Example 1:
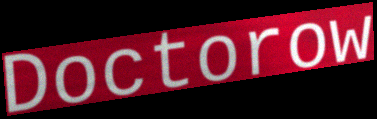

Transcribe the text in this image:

Doctorow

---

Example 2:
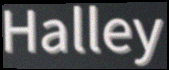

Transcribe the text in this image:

Halley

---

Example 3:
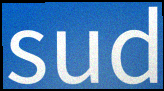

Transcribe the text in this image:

sud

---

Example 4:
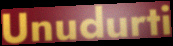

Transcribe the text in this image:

Unudurti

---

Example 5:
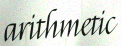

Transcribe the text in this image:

arithmetic